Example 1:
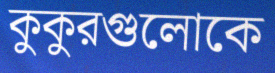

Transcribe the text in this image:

কুকুরগুলোকে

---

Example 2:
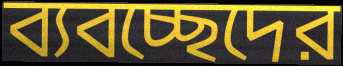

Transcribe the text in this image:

ব্যবচ্ছেদের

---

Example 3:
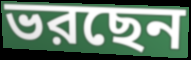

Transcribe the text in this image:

ভরছেন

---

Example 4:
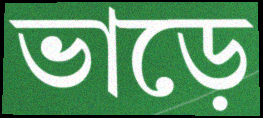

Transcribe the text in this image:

ভাড়ে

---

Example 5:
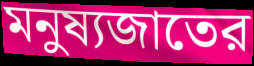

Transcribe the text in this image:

মনুষ্যজাতের